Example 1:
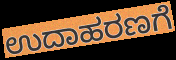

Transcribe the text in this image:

ಉದಾಹರಣಗೆ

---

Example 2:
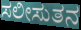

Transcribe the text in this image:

ಸಲೀಸುತನ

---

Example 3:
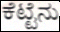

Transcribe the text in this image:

ಕೆಟ್ಟೆನು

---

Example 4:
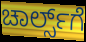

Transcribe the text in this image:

ಚಾರ್ಲ್ಸ್‌ಗೆ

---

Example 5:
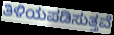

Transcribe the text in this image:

ತಿಳಿಯಪಡಿಸುತ್ತವೆ